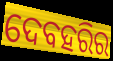
ଦେବହରିର